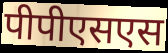
पीपीएसएस